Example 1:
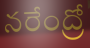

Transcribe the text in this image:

నరేంద్రో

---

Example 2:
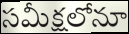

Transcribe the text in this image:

సమీక్షలోనూ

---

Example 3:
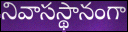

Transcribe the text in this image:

నివాసస్థానంగా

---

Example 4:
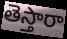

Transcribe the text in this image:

తెస్తారా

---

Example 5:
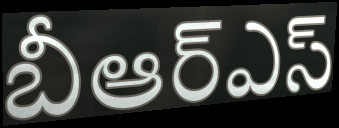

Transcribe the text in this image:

బీఆర్ఎస్